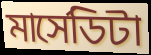
মার্সেডিটা